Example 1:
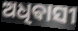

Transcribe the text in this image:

ଅଧିଵାସୀ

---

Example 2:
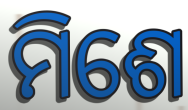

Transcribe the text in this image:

ମିଶେ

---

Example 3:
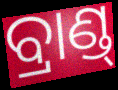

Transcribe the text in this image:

ବ୍ରାଣ୍ଡ୍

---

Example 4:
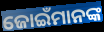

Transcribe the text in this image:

ଜୋଇଁମାନଙ୍କ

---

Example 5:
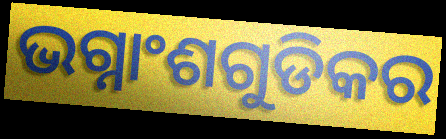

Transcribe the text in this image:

ଭଗ୍ନାଂଶଗୁଡିକର